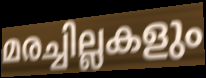
മരച്ചില്ലകളും